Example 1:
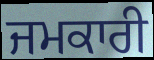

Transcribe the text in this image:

ਜਮਕਾਰੀ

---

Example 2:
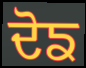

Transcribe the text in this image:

ਦੋਙ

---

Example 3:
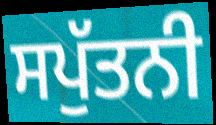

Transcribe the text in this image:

ਸਪੁੱਤਨੀ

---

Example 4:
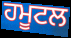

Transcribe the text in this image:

ਹਮੂਟਲ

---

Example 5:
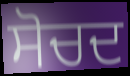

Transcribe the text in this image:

ਸੋਚਦ